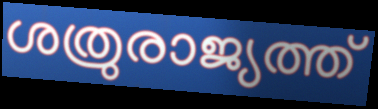
ശത്രുരാജ്യത്ത്